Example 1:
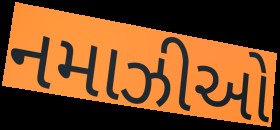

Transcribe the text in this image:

નમાઝીઓ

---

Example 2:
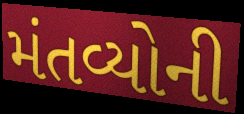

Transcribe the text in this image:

મંતવ્યોની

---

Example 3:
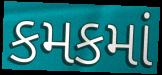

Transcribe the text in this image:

કમકમાં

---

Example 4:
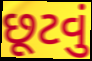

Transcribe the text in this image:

છૂટવું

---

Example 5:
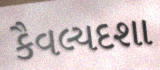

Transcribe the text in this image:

કૈવલ્યદશા